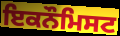
ਇਕਨੌਮਿਸਟ